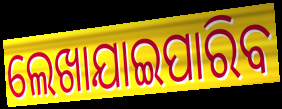
ଲେଖାଯାଇପାରିବ